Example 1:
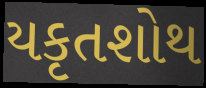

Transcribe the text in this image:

યકૃતશોથ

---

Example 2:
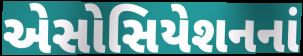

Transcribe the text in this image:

એસોસિયેશનનાં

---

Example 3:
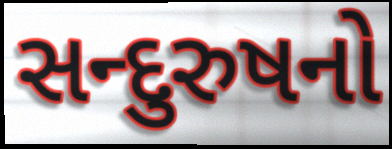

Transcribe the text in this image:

સન્દુરુષનો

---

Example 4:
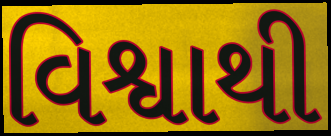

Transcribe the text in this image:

વિશ્વાથી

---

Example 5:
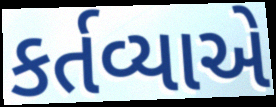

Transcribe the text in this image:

કર્તવ્યાએ